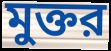
মুক্তর